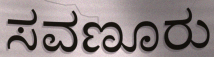
ಸವಣೂರು